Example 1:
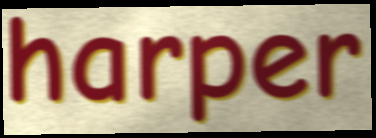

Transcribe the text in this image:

harper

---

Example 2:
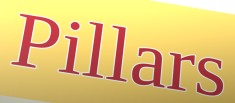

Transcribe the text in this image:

Pillars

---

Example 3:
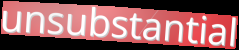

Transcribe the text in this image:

unsubstantial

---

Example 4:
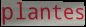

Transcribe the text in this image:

plantes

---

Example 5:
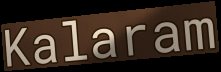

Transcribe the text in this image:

Kalaram